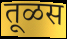
तूळस